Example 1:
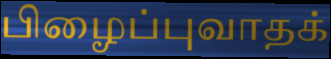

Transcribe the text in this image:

பிழைப்புவாதக்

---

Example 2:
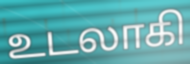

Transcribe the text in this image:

உடலாகி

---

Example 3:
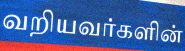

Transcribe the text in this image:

வறியவர்களின்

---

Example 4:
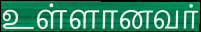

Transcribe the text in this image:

உள்ளானவர்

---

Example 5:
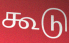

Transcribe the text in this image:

கூடு